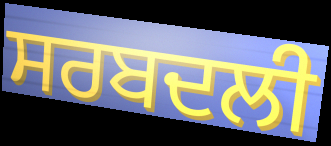
ਸਰਬਦਲੀ